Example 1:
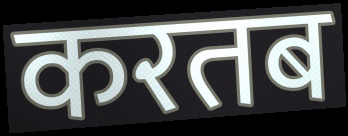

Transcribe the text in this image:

करतब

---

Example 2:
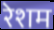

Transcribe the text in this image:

रेशम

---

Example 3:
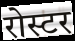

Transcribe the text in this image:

रोस्टर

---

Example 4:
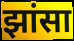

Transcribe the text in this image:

झांसा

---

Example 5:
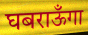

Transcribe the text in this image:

घबराऊँगा